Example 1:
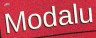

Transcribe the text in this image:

Modalu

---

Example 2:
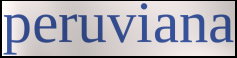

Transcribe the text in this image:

peruviana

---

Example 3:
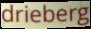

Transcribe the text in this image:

drieberg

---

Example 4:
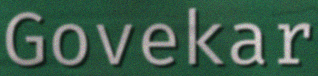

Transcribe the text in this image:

Govekar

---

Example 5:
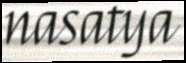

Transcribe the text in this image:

nasatya